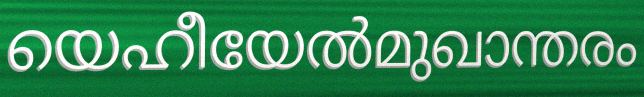
യെഹീയേൽമുഖാന്തരം